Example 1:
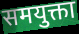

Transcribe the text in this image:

समयुक्ता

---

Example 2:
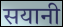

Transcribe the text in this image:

सयानी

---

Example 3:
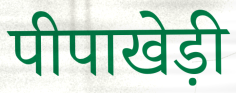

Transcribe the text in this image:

पीपाखेड़ी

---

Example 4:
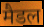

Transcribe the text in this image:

मैडल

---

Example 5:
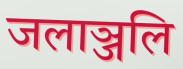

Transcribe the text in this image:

जलाञ्जलि